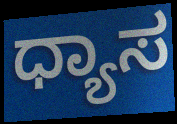
ಧ್ಯಾಸ